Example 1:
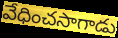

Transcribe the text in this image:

వేధించసాగాడు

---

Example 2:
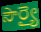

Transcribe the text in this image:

సౌర్యై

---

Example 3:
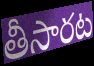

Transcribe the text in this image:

తీసారట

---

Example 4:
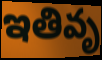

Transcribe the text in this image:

ఇతివృ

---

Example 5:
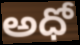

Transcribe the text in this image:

అధో